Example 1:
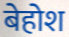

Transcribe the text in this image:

बेहोश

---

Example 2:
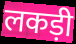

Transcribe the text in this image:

लकड़ी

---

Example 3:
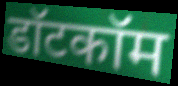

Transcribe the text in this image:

डॉटकॉम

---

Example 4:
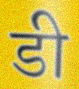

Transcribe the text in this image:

डी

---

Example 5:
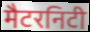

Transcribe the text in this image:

मैटरनिटी